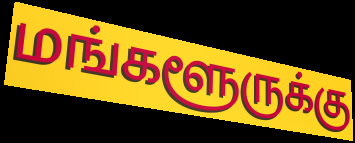
மங்களூருக்கு